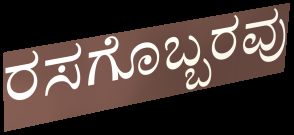
ರಸಗೊಬ್ಬರವು